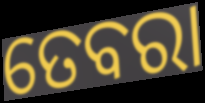
ତେବରା